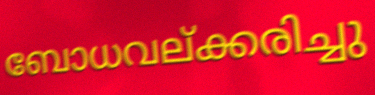
ബോധവല്ക്കരിച്ചു